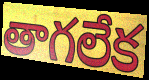
తాగలేక